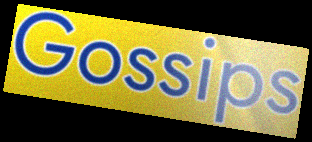
Gossips